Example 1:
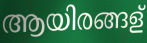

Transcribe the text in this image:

ആയിരങ്ങള്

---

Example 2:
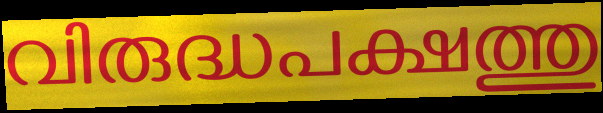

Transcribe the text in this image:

വിരുദ്ധപക്ഷത്തു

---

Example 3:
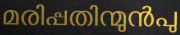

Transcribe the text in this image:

മരിപ്പതിന്മുൻപു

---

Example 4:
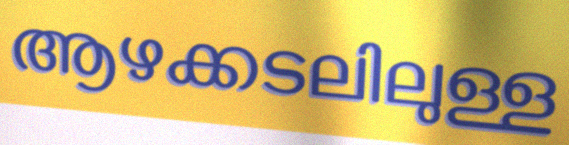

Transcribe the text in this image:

ആഴക്കടലിലുള്ള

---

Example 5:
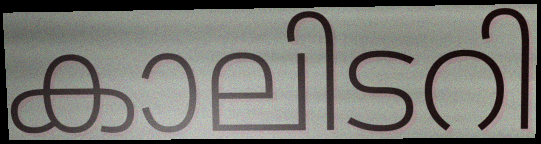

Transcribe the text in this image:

കാലിടറി